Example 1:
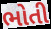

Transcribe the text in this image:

ભોતી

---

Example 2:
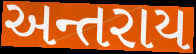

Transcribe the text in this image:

અન્તરાય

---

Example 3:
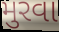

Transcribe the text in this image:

મુરવા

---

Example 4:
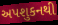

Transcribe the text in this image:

અપશુકનથી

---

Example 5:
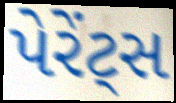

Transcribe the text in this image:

પેરેંટ્સ